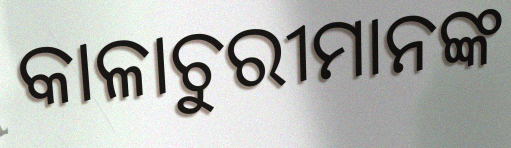
କାଳାଚୁରୀମାନଙ୍କ